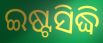
ଇଷ୍ଟସିଦ୍ଧି